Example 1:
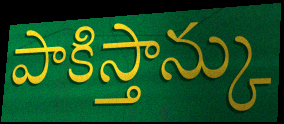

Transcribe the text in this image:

పాకిస్తాన్కు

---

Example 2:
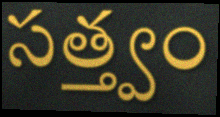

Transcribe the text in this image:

సత్త్వం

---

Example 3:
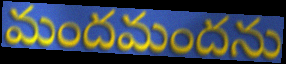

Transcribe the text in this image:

మందమందను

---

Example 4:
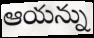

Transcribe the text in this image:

ఆయన్ను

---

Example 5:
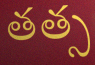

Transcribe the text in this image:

తత్స